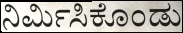
ನಿರ್ಮಿಸಿಕೊಂಡು